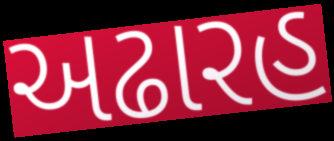
અઢારહ